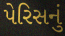
પેરિસનું